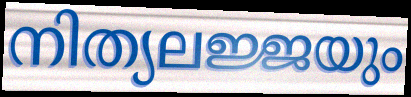
നിത്യലജ്ജയും